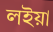
লইয়া